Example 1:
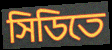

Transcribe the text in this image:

সিডিতে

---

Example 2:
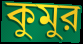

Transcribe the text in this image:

কুমুর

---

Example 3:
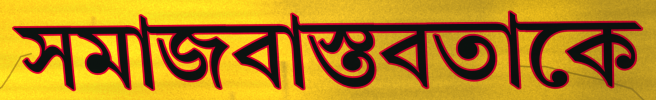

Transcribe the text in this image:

সমাজবাস্তবতাকে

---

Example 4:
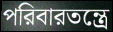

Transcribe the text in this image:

পরিবারতন্ত্রে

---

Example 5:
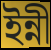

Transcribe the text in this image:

ইন্নী